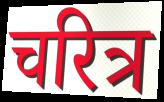
चरित्र